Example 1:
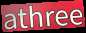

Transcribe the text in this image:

athree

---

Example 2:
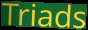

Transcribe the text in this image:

Triads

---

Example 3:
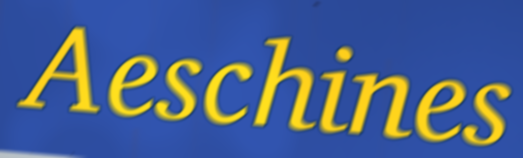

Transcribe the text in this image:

Aeschines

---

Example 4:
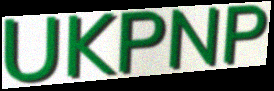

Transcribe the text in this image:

UKPNP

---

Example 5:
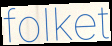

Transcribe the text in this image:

folket